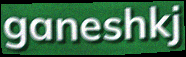
ganeshkj